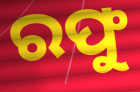
ରଫୁ